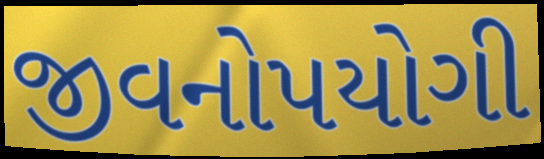
જીવનોપયોગી